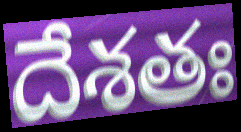
దేశతః